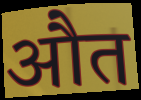
औत